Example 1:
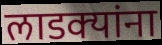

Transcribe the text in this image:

लाडक्यांना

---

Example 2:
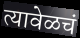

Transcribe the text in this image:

त्यावेळचं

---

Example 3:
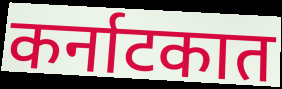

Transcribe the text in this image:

कर्नाटकात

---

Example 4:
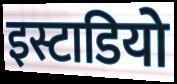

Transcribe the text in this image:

इस्टाडियो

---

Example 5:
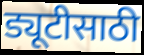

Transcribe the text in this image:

ड्यूटीसाठी